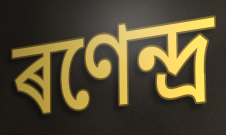
ৰণেন্দ্ৰ